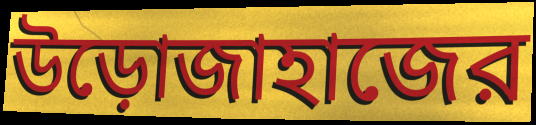
উড়োজাহাজের